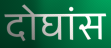
दोघांस